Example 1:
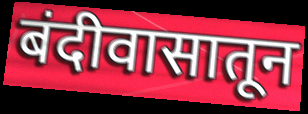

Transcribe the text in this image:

बंदीवासातून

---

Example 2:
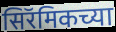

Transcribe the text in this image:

सिरॅमिकच्या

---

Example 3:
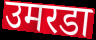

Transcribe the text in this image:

उमरडा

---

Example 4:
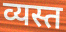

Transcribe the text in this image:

व्यस्त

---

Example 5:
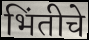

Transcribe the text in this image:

भिंतीचे